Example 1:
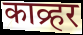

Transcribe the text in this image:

काव्र्हर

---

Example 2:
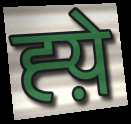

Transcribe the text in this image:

ह्य़े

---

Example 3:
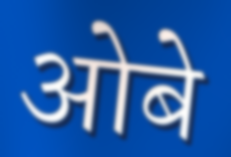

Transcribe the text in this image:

ओबे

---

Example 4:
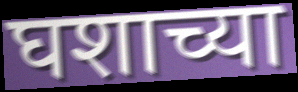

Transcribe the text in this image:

घशाच्या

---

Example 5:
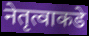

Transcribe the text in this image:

नेतृत्वाकडे